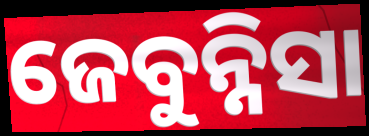
ଜେବୁନ୍ନିସା